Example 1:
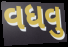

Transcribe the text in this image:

વધવુ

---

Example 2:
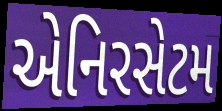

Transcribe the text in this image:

એનિરસેટમ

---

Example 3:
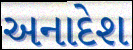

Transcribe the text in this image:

અનાદેશ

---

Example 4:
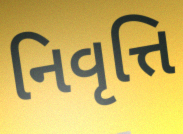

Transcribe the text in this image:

નિવૃત્તિ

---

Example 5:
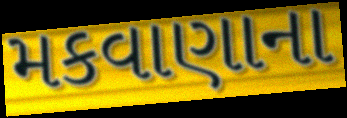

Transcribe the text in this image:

મકવાણાના